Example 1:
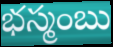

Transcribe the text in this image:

భస్మంబు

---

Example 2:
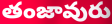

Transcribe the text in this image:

తంజావురు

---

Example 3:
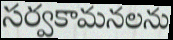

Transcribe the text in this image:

సర్వకామనలను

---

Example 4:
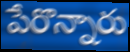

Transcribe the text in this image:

పేరొన్నారు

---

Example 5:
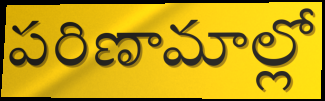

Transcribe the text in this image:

పరిణామాల్లో